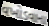
વખોડવાના